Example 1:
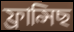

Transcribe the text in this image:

ফ্ৰান্সিছ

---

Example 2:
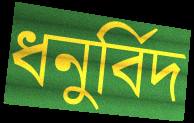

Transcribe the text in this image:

ধনুৰ্বিদ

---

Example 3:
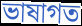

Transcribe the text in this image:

ভাষাগত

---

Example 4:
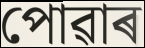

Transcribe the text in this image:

পোৱাৰ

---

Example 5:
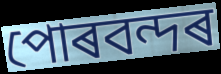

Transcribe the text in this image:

পোৰবন্দৰ